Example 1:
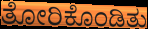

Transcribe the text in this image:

ತೋರಿಕೊಂಡಿತು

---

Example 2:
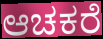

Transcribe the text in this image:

ಆಚಕರೆ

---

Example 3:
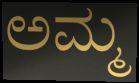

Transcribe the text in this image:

ಅಮ್ಮ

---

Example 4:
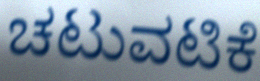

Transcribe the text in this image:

ಚಟುವಟಿಕೆ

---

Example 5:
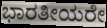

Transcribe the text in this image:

ಭಾರತೀಯರೇ